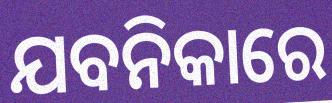
ଯବନିକାରେ